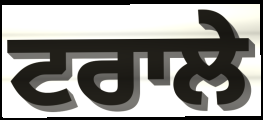
ਟਰਾਲੇ